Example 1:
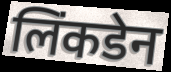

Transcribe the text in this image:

लिंकडेन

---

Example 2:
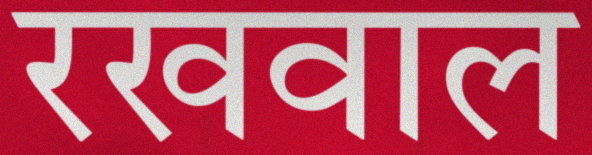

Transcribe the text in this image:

रखवाल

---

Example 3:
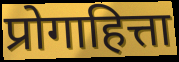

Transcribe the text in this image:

प्रोगाहित्ता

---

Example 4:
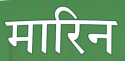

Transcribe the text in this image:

मारिन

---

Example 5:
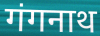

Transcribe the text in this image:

गंगनाथ